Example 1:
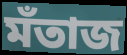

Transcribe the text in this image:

মঁতাজ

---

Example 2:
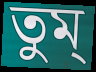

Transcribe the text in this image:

তুম্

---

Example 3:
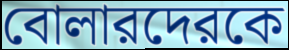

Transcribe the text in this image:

বোলারদেরকে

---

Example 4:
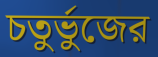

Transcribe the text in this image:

চতুর্ভুজের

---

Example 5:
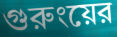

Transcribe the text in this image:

গুরুংয়ের